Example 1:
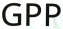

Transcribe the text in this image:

GPP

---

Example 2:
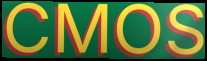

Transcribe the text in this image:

CMOS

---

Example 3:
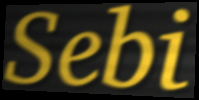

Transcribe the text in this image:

Sebi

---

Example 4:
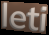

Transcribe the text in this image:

leti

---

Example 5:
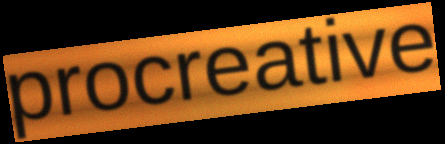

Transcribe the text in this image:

procreative